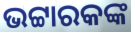
ଭଟ୍ଟାରକଙ୍କ